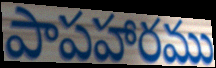
పాపహారము